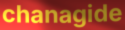
chanagide